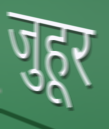
जुहूर